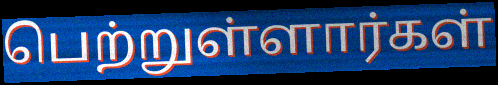
பெற்றுள்ளார்கள்